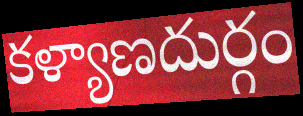
కళ్యాణదుర్గం